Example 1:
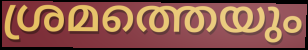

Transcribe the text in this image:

ശ്രമത്തെയും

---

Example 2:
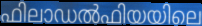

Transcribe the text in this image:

ഫിലാഡൽഫിയയിലെ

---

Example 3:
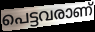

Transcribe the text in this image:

പെട്ടവരാണ്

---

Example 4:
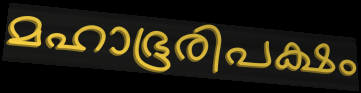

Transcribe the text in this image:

മഹാഭൂരിപക്ഷം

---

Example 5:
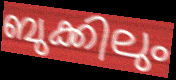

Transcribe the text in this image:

ബുക്കിലും